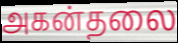
அகன்தலை